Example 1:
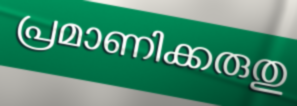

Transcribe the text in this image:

പ്രമാണിക്കരുതു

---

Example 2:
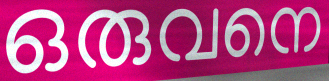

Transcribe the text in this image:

ഒരുവനെ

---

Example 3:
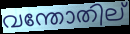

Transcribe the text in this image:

വന്തോതില്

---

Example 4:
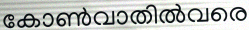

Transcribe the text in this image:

കോൺവാതിൽവരെ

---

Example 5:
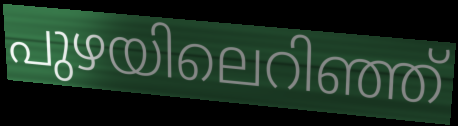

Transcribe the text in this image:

പുഴയിലെറിഞ്ഞ്